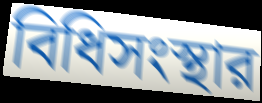
বিধিসংস্থার